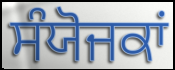
ਸੰਯੋਜਕਾਂ